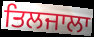
ਤਿਲਜਾਲਾ